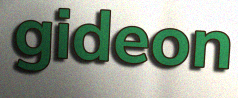
gideon